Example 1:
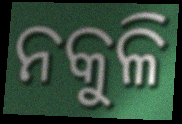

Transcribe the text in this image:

ନକୁଳି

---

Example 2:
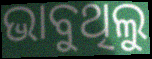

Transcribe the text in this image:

ଭାବୁଥିଲୁ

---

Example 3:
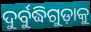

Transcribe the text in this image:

ଦୁର୍ବୁଦ୍ଧିଗୁଡ଼ାକୁ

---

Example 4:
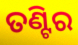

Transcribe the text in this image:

ତଣ୍ଟିର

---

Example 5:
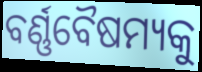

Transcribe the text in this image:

ବର୍ଣ୍ଣବୈଷମ୍ୟକୁ